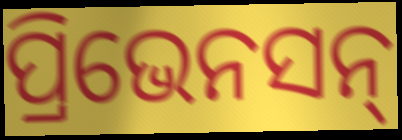
ପ୍ରିଭେନସନ୍